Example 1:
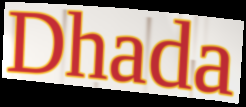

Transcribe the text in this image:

Dhada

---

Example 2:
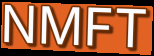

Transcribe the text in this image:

NMFT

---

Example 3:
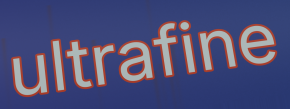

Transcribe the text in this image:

ultrafine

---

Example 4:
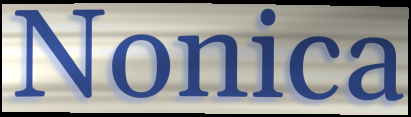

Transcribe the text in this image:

Nonica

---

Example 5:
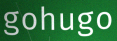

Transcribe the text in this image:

gohugo